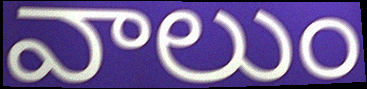
వాలుం